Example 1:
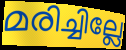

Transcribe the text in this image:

മരിച്ചില്ലേ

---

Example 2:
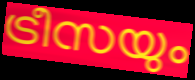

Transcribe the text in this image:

ട്രീസയും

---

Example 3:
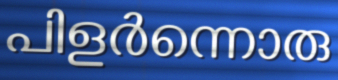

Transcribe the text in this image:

പിളർന്നൊരു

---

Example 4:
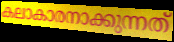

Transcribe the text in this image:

കലാകാരനാക്കുന്നത്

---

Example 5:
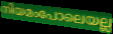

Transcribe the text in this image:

നിയമംപോലെയല്ല